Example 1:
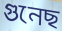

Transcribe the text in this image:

গুনেছ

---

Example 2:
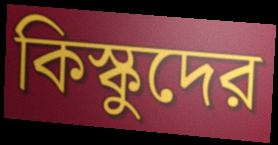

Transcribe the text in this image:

কিস্কুদের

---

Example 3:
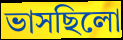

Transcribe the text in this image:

ভাসছিলো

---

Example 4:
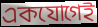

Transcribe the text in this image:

একযোগেই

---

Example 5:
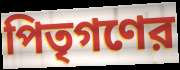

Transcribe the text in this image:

পিতৃগণের